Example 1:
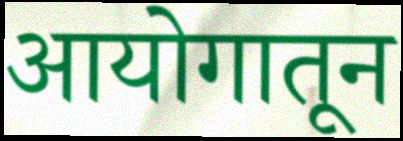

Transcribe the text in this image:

आयोगातून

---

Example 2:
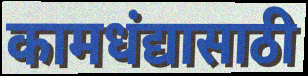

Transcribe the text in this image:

कामधंद्यासाठी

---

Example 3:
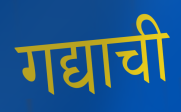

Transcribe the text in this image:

गद्याची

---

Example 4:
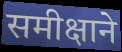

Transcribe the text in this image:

समीक्षाने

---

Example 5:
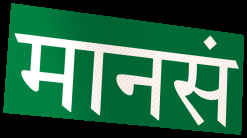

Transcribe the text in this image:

मानसं